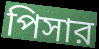
পিসার